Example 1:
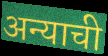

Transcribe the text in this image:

अन्याची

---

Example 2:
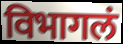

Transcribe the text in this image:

विभागलं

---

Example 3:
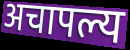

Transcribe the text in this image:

अचापल्य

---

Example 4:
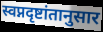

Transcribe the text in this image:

स्वप्नदृष्टांतानुसार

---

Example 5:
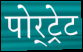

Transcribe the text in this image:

पोर्ट्रेट